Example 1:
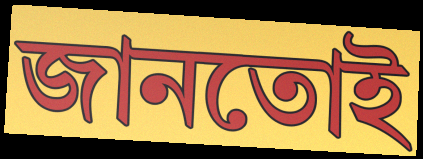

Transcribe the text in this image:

জানতোই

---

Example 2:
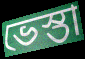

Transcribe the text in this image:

ভেস্তা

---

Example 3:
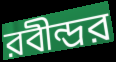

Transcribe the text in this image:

রবীন্দ্রর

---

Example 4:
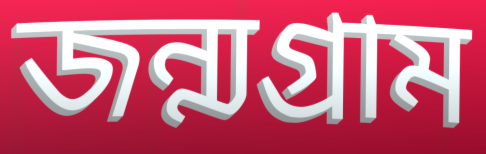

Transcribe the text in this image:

জন্মগ্রাম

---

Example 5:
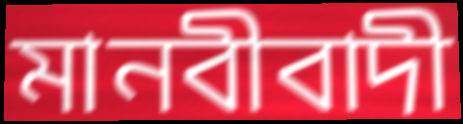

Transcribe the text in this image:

মানবীবাদী